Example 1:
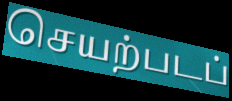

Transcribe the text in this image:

செயற்படப்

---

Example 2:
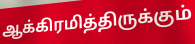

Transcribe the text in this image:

ஆக்கிரமித்திருக்கும்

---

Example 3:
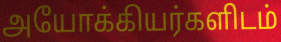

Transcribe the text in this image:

அயோக்கியர்களிடம்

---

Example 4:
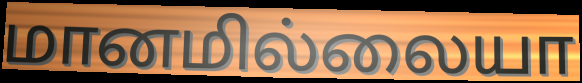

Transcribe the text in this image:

மானமில்லையா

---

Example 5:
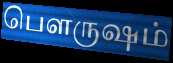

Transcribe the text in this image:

பௌருஷம்